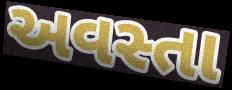
અવસ્તા